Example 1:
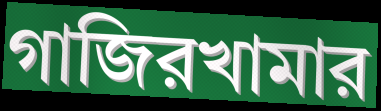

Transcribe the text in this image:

গাজিরখামার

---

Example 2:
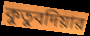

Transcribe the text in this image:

কুতুবদিয়ার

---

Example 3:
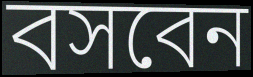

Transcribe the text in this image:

বসবেন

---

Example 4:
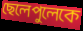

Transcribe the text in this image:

ছেলেপুলেকে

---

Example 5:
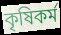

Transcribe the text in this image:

কৃষিকর্ম